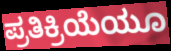
ಪ್ರತಿಕ್ರಿಯೆಯೂ